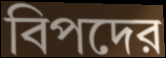
বিপদের